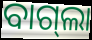
ବାଗ୍‍ଲା